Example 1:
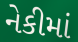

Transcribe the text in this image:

નેકીમાં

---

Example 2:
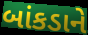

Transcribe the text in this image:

બાંકડાને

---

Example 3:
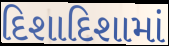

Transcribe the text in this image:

દિશાદિશામાં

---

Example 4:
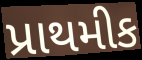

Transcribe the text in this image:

પ્રાથમીક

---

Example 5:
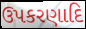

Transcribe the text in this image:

ઉપકરણાદિ